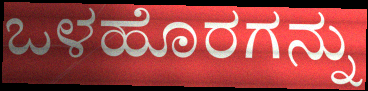
ಒಳಹೊರಗನ್ನು